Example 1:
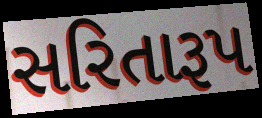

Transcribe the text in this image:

સરિતારૂપ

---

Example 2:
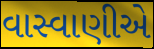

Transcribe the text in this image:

વાસ્વાણીએ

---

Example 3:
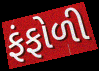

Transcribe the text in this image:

ફંફોળી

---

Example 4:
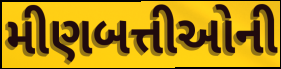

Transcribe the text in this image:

મીણબત્તીઓની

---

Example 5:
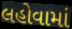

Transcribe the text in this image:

લહોવામાં